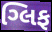
ગ્લિફ